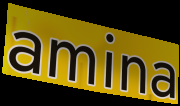
amina